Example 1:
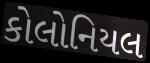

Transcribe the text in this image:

કોલોનિયલ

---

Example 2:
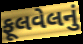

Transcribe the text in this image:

ફૂલવેલનું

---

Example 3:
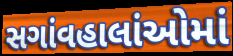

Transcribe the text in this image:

સગાંવહાલાંઓમાં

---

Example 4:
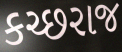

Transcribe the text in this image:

કચ્છરાજ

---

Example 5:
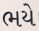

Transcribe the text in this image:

ભયે